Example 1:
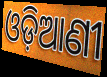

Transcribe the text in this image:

ଓଡ଼ିଆଣୀ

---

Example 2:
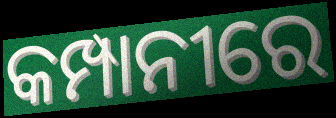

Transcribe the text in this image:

କମ୍ପାନୀରେ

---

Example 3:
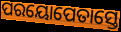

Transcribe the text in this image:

ପରୟୋପେତାସ୍ତେ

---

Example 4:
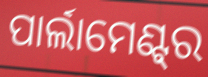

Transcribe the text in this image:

ପାର୍ଲାମେଣ୍ଟ୍‌ର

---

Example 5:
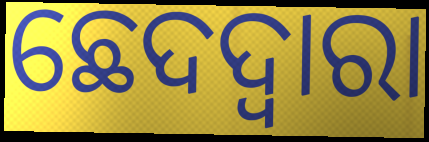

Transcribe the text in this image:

ଛେଦଦ୍ୱାରା